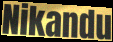
Nikandu